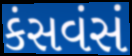
કંસવંસં